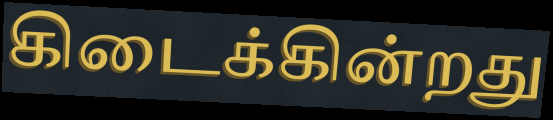
கிடைக்கின்றது